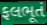
ફલભૂતં